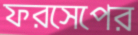
ফরসেপের